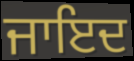
ਜਾਇਦ